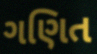
ગણિત